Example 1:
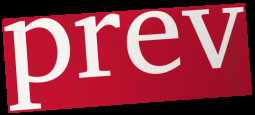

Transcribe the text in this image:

prev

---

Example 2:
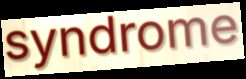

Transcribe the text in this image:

syndrome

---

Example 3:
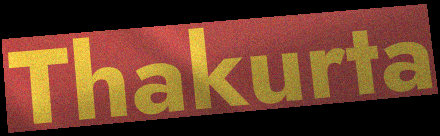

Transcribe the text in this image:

Thakurta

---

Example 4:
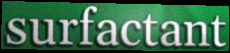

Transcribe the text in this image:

surfactant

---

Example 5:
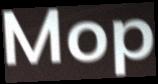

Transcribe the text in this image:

Mop